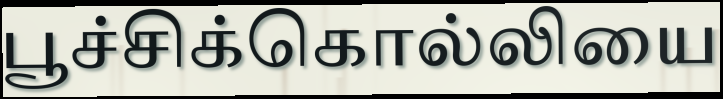
பூச்சிக்கொல்லியை